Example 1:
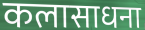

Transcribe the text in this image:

कलासाधना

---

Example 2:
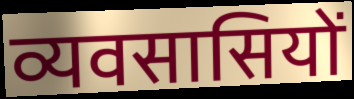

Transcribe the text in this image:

व्यवसासियों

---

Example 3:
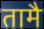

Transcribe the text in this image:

तामै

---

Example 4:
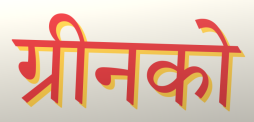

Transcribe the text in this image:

ग्रीनको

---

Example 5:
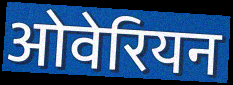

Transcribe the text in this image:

ओवेरियन